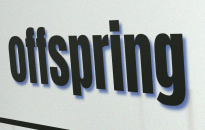
offspring